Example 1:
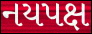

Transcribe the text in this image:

નયપક્ષ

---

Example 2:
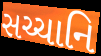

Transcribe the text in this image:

સચ્ચાનિ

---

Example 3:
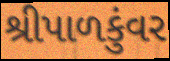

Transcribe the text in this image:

શ્રીપાળકુંવર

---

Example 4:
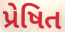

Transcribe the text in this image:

પ્રેષિત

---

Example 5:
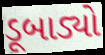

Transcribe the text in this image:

ડૂબાડ્યો